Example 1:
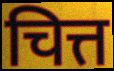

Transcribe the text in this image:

चित्त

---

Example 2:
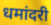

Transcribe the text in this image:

धमांदरी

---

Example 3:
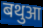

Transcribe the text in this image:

बथुआ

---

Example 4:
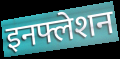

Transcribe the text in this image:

इनफ्लेशन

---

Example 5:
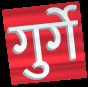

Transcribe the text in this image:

गुर्गे